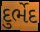
દુર્ભેદ